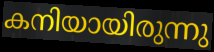
കനിയായിരുന്നു